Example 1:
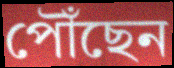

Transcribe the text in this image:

পৌঁছেন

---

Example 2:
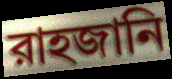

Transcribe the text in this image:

রাহজানি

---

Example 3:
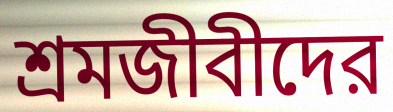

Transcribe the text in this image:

শ্রমজীবীদের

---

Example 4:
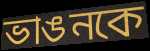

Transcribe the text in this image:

ভাঙনকে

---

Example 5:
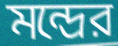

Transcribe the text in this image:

মন্দ্রের